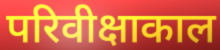
परिवीक्षाकाल